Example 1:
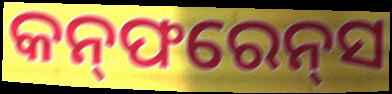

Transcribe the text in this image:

କନ୍‌ଫରେନ୍‌ସ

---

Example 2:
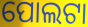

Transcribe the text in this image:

ପୋଲଟା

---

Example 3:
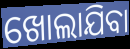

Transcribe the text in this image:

ଖୋଲାଯିବା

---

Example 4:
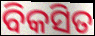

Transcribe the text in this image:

ବିକସିତ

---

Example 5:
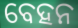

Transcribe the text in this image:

ବେହନ